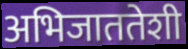
अभिजाततेशी